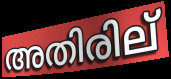
അതിരില്